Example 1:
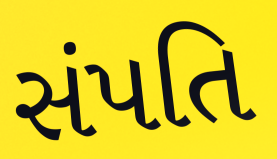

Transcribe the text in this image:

સંપતિ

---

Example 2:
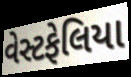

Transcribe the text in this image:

વેસ્ટફેલિયા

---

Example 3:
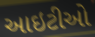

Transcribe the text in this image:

આઇટીઓ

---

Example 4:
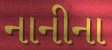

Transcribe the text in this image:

નાનીના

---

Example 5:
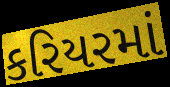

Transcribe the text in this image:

કરિયરમાં